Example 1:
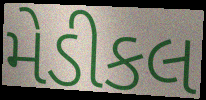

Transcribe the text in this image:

મેડીકલ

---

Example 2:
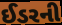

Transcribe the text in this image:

ઈડરની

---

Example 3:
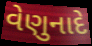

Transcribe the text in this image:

વેણુનાદે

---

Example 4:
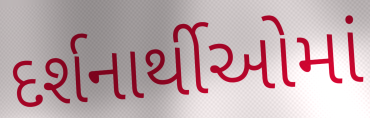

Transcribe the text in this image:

દર્શનાર્થીઓમાં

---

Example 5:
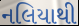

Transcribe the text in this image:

નલિયાથી